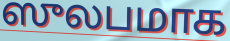
ஸுலபமாக